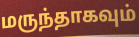
மருந்தாகவும்